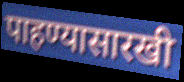
पाहण्यासारखी